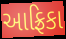
આફ્રિકા